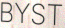
BYST